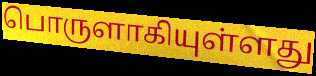
பொருளாகியுள்ளது